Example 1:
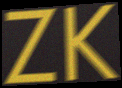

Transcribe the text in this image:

ZK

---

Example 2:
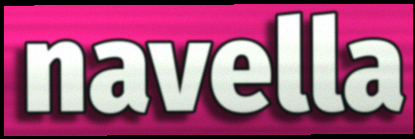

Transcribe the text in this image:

navella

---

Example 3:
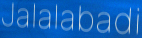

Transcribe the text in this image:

Jalalabadi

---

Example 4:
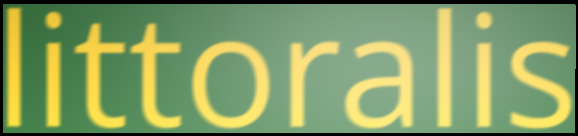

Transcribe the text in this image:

littoralis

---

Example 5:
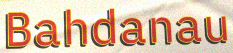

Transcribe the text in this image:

Bahdanau